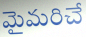
మైమరిచే